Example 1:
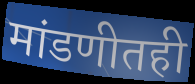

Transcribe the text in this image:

मांडणीतही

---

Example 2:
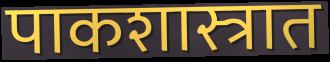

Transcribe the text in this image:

पाकशास्त्रात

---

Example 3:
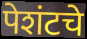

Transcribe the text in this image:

पेशंटचे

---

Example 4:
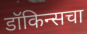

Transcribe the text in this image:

डॉकिन्सचा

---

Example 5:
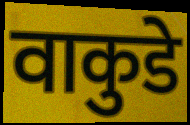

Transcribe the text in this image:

वाकुडे